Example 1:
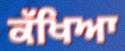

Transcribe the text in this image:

ਕੱਖਿਆ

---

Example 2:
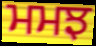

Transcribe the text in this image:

ਮਮਝ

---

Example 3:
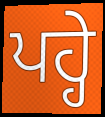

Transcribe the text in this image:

ਪਹ੍ਹੇ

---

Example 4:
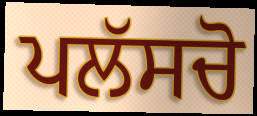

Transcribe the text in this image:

ਪਲੱਸਚੋ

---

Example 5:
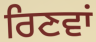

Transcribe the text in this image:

ਰਿਣਵਾਂ